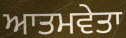
ਆਤਮਵੇਤਾ